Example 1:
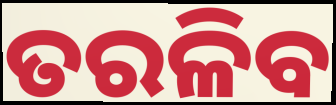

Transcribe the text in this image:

ତରଳିବ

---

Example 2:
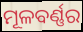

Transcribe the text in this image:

ମୂଳବର୍ଣ୍ଣର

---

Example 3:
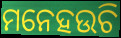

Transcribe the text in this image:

ମନେହଉଚି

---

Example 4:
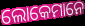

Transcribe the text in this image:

ଲୋକେମାନେ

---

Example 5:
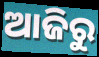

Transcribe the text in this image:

ଆଜିରୁ